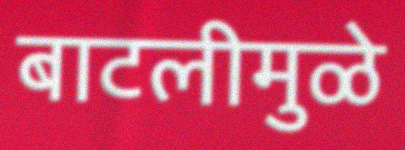
बाटलीमुळे